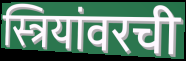
स्त्रियांवरची